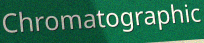
Chromatographic